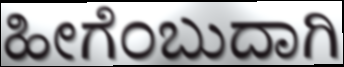
ಹೀಗೆಂಬುದಾಗಿ